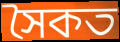
সৈকত